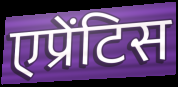
एप्रेंटिस